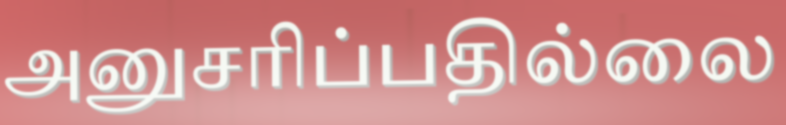
அனுசரிப்பதில்லை